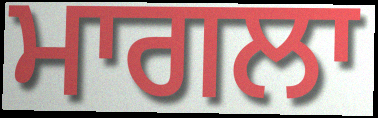
ਮਾਗਲਾ